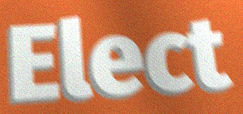
Elect